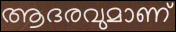
ആദരവുമാണ്